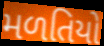
મળતિયો